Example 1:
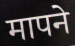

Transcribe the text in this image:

मापने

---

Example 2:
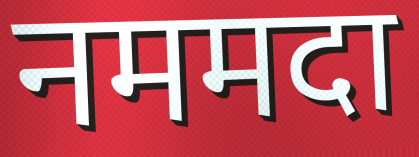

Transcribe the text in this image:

नममदा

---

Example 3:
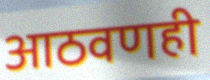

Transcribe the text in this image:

आठवणही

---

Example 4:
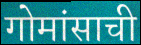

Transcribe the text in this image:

गोमांसाची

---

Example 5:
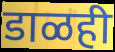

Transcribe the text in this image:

डाळही